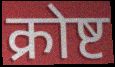
क्रोष्ट